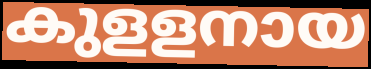
കുളളനായ